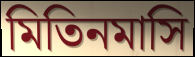
মিতিনমাসি